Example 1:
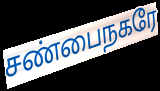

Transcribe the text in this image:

சண்பைநகரே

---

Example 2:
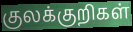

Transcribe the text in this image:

குலக்குறிகள்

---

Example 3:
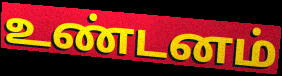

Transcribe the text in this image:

உண்டனம்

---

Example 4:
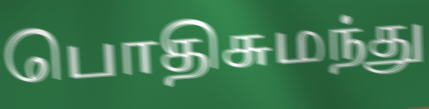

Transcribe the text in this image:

பொதிசுமந்து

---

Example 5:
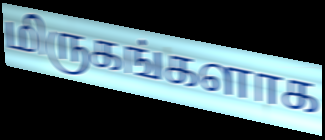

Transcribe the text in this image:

மிருகங்களாக